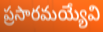
ప్రసారమయ్యేవి